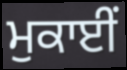
ਮੁਕਾਈਂ